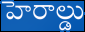
హెరాల్డు